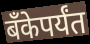
बॅंकेपर्यंत